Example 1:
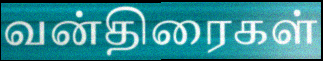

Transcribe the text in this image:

வன்திரைகள்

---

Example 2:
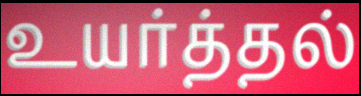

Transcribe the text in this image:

உயர்த்தல்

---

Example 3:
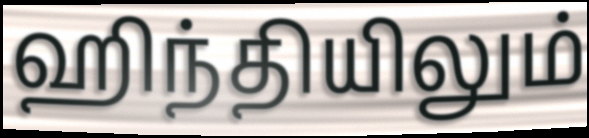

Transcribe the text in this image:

ஹிந்தியிலும்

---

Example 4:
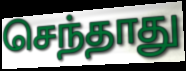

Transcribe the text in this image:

செந்தாது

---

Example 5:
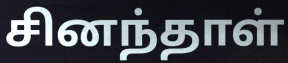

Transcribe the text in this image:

சினந்தாள்